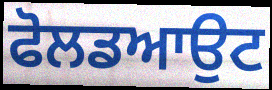
ਫੋਲਡਆਉਟ